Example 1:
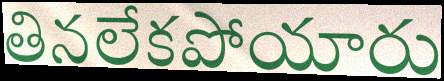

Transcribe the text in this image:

తినలేకపోయారు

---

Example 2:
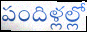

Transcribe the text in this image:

పందిళ్లల్లో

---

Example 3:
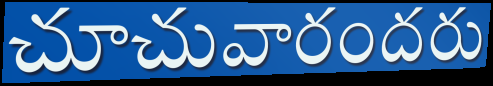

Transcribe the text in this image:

చూచువారందరు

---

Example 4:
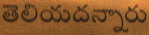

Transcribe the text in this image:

తెలియదన్నారు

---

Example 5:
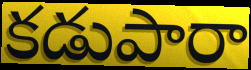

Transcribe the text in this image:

కడుపారా